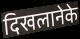
दिखलानेके